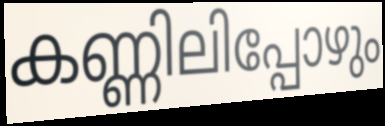
കണ്ണിലിപ്പോഴും